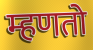
म्हणतो